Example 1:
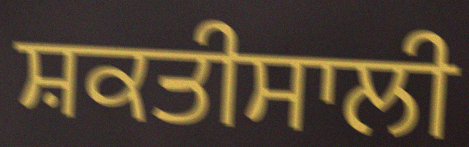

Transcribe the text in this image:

ਸ਼ਕਤੀਸਾਲੀ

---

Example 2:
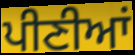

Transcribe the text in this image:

ਪੀਣੀਆਂ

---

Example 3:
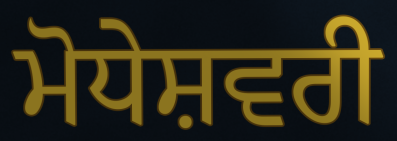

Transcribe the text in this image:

ਮੋਧੇਸ਼ਵਰੀ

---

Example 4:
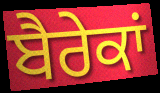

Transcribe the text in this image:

ਬੈਰੇਕਾਂ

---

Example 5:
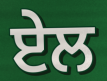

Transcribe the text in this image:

ਏਲ